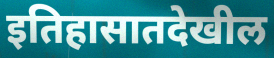
इतिहासातदेखील